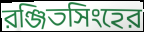
রঞ্জিতসিংহের